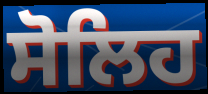
ਸੋਲਿਹ